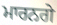
ਮਾਰਨਗੇ